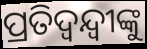
ପ୍ରତିଦ୍ଵନ୍ଦ୍ୱୀଙ୍କୁ